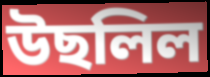
উছলিল